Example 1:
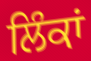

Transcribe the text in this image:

ਲਿੰਕਾਂ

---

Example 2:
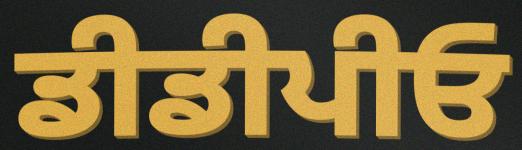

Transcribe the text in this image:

ਡੀਡੀਪੀਓ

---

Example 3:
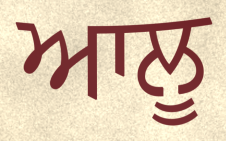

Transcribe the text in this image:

ਆਲੂ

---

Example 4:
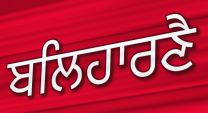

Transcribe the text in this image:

ਬਲਿਹਾਰਣੈ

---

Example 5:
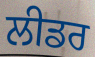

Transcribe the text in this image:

ਲੀਡਰ